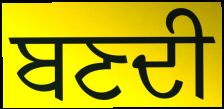
ਬਣਦੀ